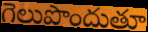
గెలుపొందుతూ